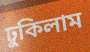
ঢুকিলাম